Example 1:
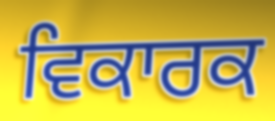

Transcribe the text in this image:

ਵਿਕਾਰਕ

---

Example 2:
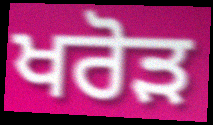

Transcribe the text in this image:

ਖਰੋੜ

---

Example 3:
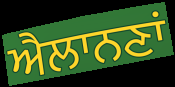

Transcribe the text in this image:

ਐਲਾਨਣਾਂ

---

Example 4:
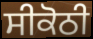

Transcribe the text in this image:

ਸੀਕੋਠੀ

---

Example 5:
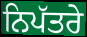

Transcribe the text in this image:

ਨਿਪੱਤਰੇ